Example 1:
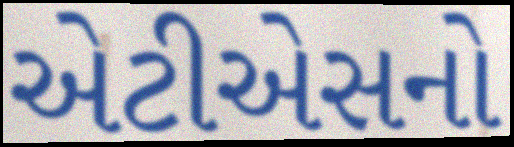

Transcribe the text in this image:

એટીએસનો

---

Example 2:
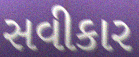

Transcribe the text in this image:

સવીકાર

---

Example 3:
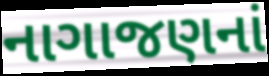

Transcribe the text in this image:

નાગાજણનાં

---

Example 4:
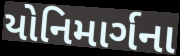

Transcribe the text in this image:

યોનિમાર્ગના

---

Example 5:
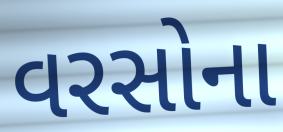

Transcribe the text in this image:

વરસોના